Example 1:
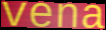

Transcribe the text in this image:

vena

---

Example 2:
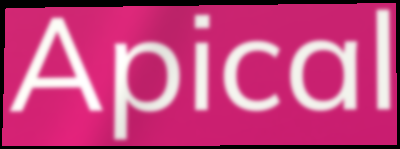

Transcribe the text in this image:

Apical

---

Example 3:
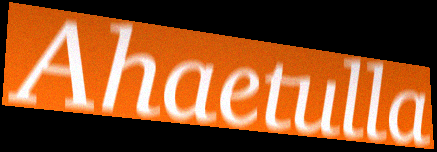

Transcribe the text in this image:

Ahaetulla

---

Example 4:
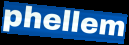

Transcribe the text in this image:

phellem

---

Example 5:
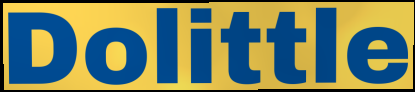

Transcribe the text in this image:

Dolittle